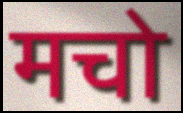
मचो